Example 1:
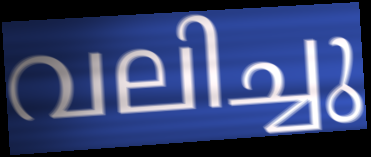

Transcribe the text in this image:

വലിച്ചു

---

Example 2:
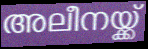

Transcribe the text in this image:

അലീനയ്ക്ക്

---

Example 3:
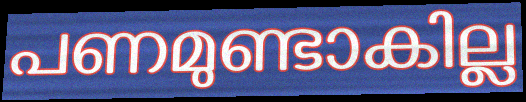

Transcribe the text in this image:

പണമുണ്ടാകില്ല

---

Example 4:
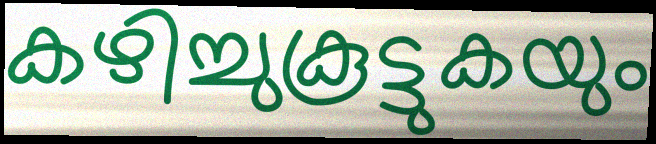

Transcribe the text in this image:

കഴിച്ചുകൂട്ടുകയും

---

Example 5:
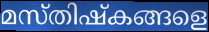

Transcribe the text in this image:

മസ്തിഷ്കങ്ങളെ